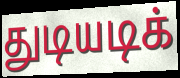
துடியடிக்